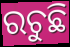
ରଚୁଛି